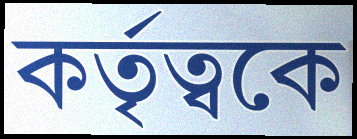
কর্তৃত্বকে